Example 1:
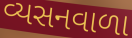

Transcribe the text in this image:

વ્યસનવાળા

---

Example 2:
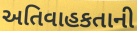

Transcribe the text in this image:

અતિવાહકતાની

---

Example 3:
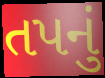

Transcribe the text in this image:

તપનું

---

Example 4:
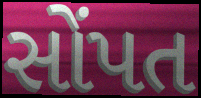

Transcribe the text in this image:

સોંપત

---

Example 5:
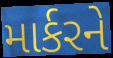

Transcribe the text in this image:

માર્કરને